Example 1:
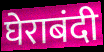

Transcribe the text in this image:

घेराबंदी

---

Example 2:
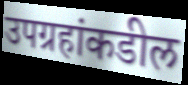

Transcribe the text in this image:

उपग्रहांकडील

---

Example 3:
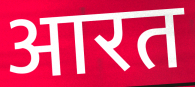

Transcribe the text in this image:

आरत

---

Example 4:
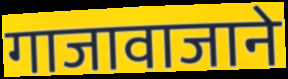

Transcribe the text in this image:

गाजावाजाने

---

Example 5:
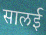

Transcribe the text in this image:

सालई